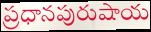
ప్రధానపురుషాయ